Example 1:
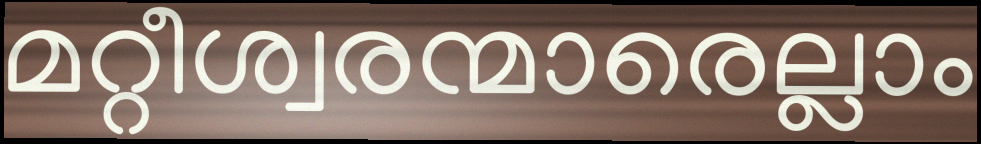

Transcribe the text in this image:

മറ്റീശ്വരന്മാരെല്ലാം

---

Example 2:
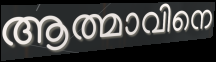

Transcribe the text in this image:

ആത്മാവിനെ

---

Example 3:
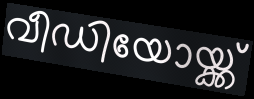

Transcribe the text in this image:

വീഡിയോയ്ക്ക്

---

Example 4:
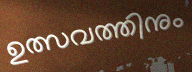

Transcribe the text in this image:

ഉത്സവത്തിനും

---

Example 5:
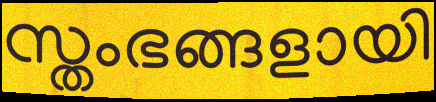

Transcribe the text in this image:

സ്തംഭങ്ങളായി